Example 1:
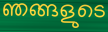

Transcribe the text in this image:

ഞങ്ങളുടെ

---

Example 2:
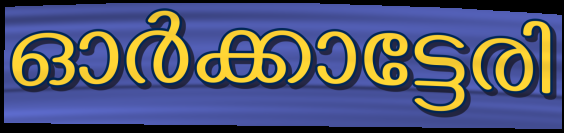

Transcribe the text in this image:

ഓർക്കാട്ടേരി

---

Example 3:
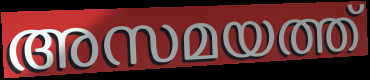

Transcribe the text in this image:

അസമയത്ത്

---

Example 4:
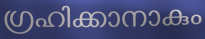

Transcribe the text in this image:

ഗ്രഹിക്കാനാകും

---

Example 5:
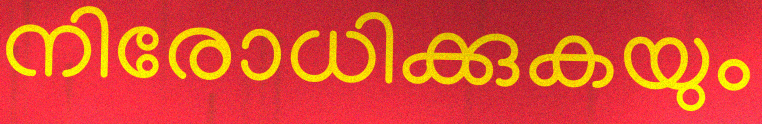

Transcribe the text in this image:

നിരോധിക്കുകയും